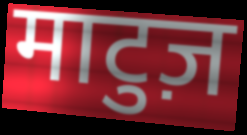
माटुज़